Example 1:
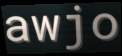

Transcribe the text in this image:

awjo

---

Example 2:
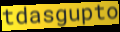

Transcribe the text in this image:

tdasgupto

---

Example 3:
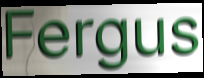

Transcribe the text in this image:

Fergus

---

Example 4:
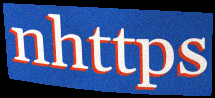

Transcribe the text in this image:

nhttps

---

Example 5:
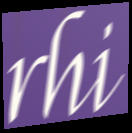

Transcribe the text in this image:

rhi